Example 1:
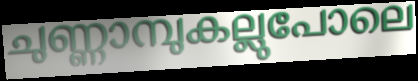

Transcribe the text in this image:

ചുണ്ണാമ്പുകല്ലുപോലെ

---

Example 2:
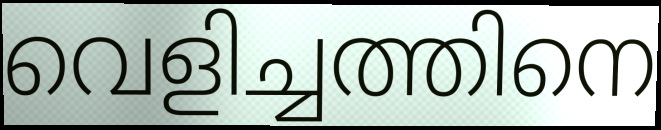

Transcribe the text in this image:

വെളിച്ചത്തിനെ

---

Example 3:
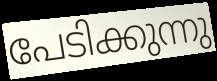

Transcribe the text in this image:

പേടിക്കുന്നു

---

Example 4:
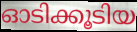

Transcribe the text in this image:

ഓടിക്കൂടിയ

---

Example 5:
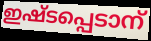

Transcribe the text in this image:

ഇഷ്ടപ്പെടാന്